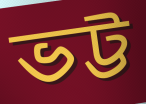
ভট্ট